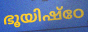
ഭൂയിഷ്ഠേ